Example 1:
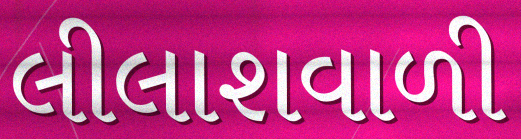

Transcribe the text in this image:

લીલાશવાળી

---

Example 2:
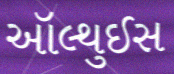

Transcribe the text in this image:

ઑલ્થુઈસ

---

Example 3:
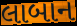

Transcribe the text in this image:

લાબાન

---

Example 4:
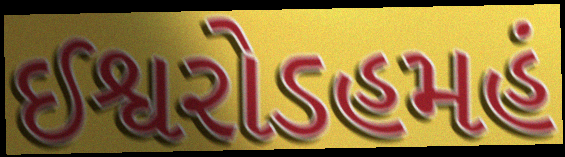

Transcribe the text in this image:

ઈશ્વરોઽહમહં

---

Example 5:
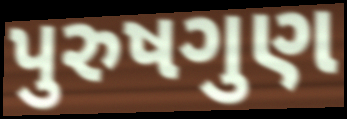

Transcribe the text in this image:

પુરુષગુણ